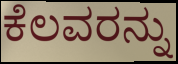
ಕೆಲವರನ್ನು